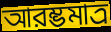
আরম্ভমাত্র